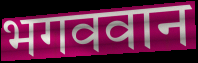
भगववान